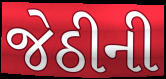
જેઠીની